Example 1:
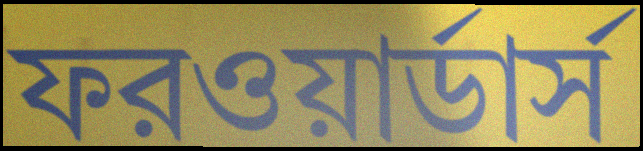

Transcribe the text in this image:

ফরওয়ার্ডার্স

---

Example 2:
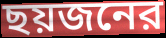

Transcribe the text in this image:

ছয়জনের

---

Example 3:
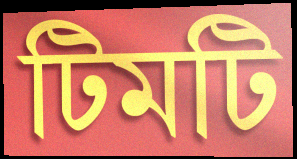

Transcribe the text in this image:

টিমটি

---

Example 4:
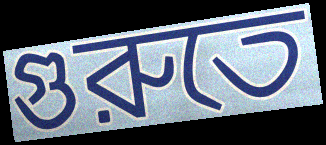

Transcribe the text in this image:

গুরুতে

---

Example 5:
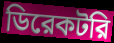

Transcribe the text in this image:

ডিরেকটরি